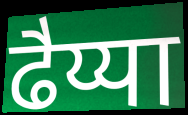
ढैय्या